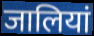
जालियां